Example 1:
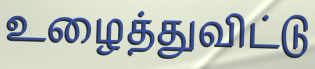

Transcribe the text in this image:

உழைத்துவிட்டு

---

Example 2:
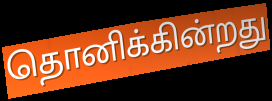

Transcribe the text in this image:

தொனிக்கின்றது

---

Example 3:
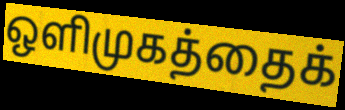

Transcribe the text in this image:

ஒளிமுகத்தைக்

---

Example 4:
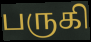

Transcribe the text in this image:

பருகி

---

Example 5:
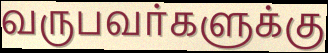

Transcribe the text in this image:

வருபவர்களுக்கு